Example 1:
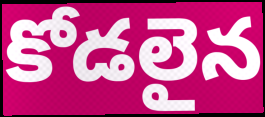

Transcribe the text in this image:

కోడలైన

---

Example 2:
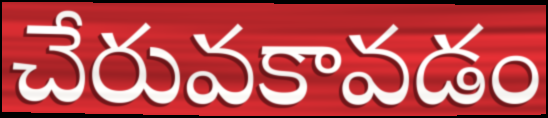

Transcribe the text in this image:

చేరువకావడం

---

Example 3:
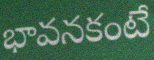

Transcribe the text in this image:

భావనకంటే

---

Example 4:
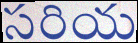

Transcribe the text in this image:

సరియ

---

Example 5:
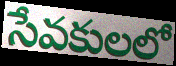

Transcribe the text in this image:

సేవకులలో